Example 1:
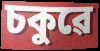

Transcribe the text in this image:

চকুৱে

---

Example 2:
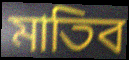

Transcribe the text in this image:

মাতিব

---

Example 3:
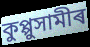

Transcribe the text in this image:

কুপ্পুসামীৰ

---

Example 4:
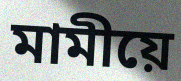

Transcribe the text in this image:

মামীয়ে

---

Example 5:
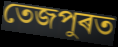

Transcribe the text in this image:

তেজপুৰত